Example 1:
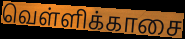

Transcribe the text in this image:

வெள்ளிக்காசை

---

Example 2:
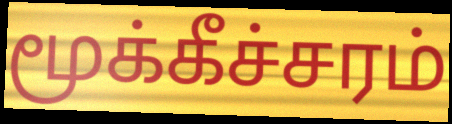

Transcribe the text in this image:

மூக்கீச்சரம்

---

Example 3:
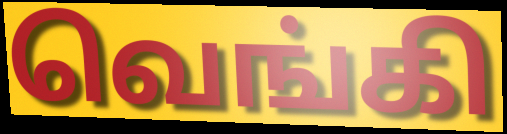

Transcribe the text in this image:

வெங்கி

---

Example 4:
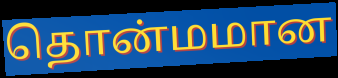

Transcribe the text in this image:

தொன்மமான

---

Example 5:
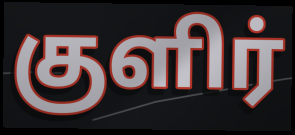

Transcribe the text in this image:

குளிர்